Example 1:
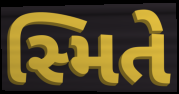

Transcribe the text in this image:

સ્મિતે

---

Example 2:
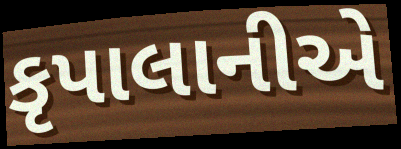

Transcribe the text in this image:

કૃપાલાનીએ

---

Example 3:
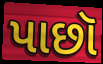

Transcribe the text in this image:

પાછૉ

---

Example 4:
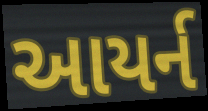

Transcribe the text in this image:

આયર્ન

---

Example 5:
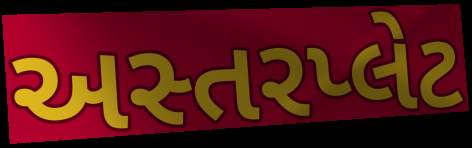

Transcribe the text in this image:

અસ્તરપ્લેટ